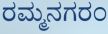
ರಮ್ಮನಗರಂ